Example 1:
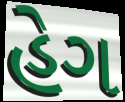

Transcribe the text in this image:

હેગ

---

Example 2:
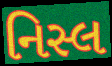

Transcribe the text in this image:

નિસ્લ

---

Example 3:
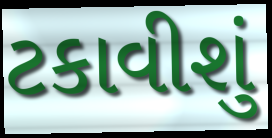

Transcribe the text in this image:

ટકાવીશું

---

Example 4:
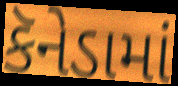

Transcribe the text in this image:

કૅનેડામાં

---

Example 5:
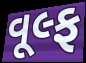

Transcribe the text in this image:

વૂલ્ફ